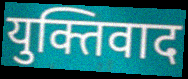
युक्‍तिवाद